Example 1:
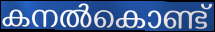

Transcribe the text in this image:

കനൽകൊണ്ട്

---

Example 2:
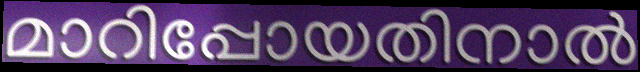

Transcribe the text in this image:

മാറിപ്പോയതിനാൽ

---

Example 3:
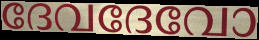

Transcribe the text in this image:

ദേവദേവോ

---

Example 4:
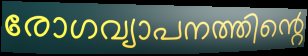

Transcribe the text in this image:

രോഗവ്യാപനത്തിന്റെ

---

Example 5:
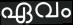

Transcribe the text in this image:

ഏവം